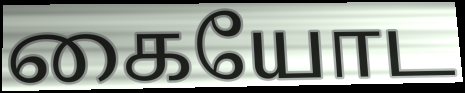
கையோட